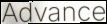
Advance